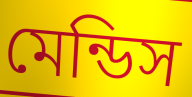
মেন্ডিস